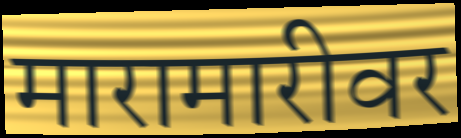
मारामारीवर